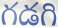
గడగి